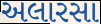
અલારસા